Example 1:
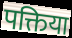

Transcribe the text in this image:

पक्तिया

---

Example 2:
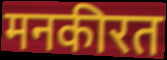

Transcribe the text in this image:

मनकीरत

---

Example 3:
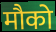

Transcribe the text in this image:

मौको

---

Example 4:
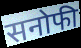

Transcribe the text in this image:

सनोफी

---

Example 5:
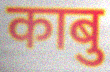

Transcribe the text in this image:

काबु